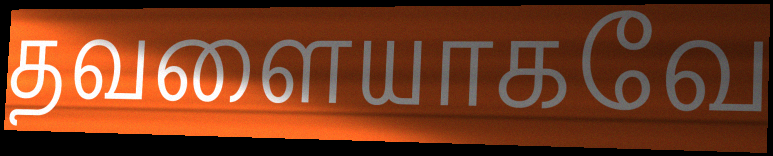
தவளையாகவே